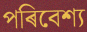
পৰিবেশ্য